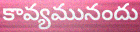
కావ్యమునందు